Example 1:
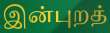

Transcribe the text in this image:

இன்புறத்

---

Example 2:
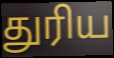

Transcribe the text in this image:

துரிய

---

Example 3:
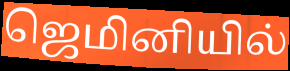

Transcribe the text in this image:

ஜெமினியில்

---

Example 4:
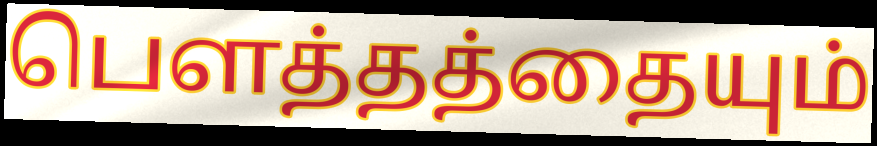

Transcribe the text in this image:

பெளத்தத்தையும்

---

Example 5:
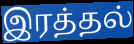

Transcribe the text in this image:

இரத்தல்